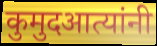
कुमुदआत्यांनी